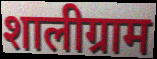
शालीग्राम